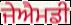
ਜੇਐਮਡੀ